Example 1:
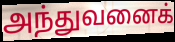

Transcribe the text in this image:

அந்துவனைக்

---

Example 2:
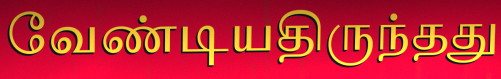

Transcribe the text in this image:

வேண்டியதிருந்தது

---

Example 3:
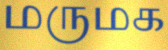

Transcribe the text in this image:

மருமக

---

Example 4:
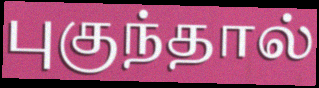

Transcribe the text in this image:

புகுந்தால்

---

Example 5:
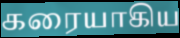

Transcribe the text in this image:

கரையாகிய